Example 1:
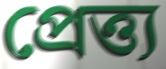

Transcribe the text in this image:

প্রেত্ত্য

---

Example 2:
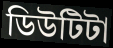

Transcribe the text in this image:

ডিউটিটা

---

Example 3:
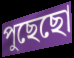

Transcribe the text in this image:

পুছেছো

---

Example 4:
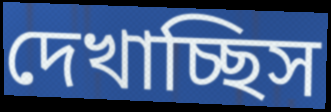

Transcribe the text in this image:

দেখাচ্ছিস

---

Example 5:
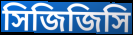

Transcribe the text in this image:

সিজিজিসি